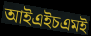
আইএইচএমই